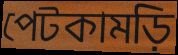
পেটকামড়ি